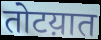
तोटय़ात